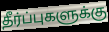
தீர்ப்புகளுக்கு